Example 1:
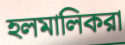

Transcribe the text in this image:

হলমালিকরা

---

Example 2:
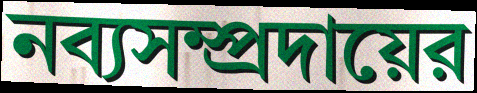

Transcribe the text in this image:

নব্যসম্প্রদায়ের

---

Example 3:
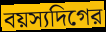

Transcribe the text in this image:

বয়স্যদিগের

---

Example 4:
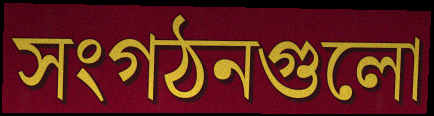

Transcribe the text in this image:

সংগঠনগুলো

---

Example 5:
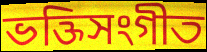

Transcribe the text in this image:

ভক্তিসংগীত